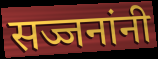
सज्जनांनी